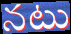
నటు